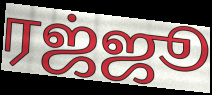
ரஜ்ஜூ